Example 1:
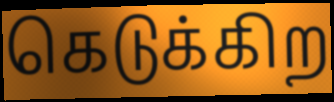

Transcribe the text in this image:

கெடுக்கிற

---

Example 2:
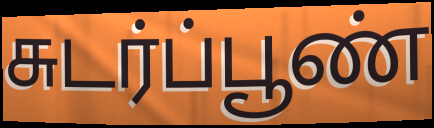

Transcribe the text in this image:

சுடர்ப்பூண்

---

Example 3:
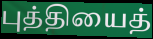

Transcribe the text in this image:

புத்தியைத்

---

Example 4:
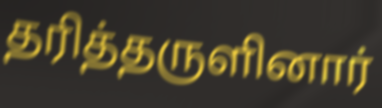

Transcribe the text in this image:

தரித்தருளினார்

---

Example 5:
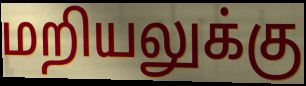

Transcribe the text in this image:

மறியலுக்கு